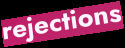
rejections